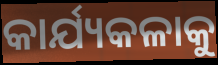
କାର୍ଯ୍ୟକଳାକୁ